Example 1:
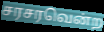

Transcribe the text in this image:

சரசரவென்ற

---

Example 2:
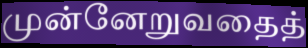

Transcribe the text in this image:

முன்னேறுவதைத்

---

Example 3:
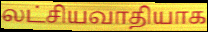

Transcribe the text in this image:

லட்சியவாதியாக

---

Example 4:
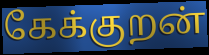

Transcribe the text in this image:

கேக்குறன்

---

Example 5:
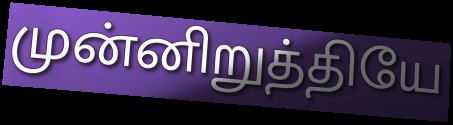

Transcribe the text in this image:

முன்னிறுத்தியே